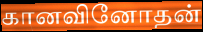
கானவினோதன்